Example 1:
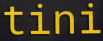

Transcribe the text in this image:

tini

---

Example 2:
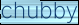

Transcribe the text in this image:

chubby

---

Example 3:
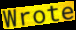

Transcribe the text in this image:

Wrote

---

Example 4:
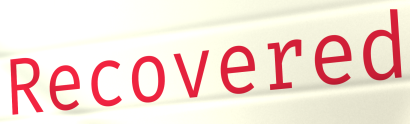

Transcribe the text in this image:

Recovered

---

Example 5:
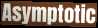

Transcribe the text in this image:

Asymptotic